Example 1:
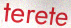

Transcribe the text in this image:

terete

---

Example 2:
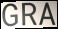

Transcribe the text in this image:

GRA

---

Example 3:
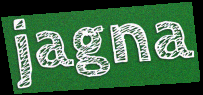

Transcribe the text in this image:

jagna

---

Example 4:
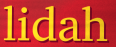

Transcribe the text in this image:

lidah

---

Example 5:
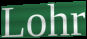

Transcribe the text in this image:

Lohr